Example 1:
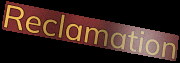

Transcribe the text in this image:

Reclamation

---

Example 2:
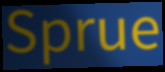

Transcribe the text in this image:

Sprue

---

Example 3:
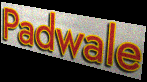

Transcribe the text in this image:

Padwale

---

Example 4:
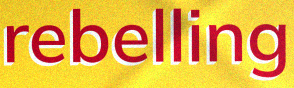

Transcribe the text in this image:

rebelling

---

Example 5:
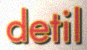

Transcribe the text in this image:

detil